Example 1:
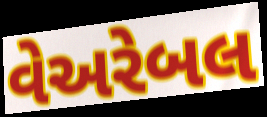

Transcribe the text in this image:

વેઅરેબલ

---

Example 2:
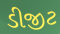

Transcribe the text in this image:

ડીજીટ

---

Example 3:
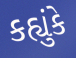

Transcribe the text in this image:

કહ્યુંકે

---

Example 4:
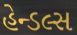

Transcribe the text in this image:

હેન્ડલ્સ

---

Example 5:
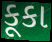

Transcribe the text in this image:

કૂકા